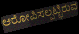
ಆರೋಪಿಸಲ್ಪಟ್ಟಿರುವ